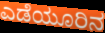
ಎಡೆಯೂರಿನ